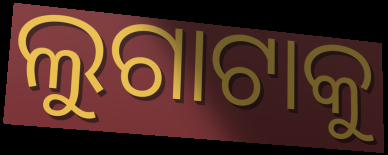
ଲୁଗାଟାକୁ